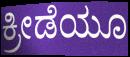
ಕ್ರೀಡೆಯೂ